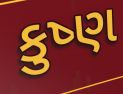
કુષ્ણ